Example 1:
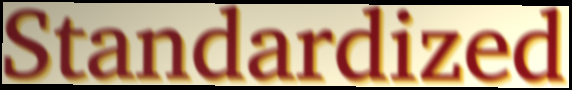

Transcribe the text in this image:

Standardized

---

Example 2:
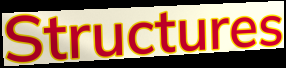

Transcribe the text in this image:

Structures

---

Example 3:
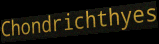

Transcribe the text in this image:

Chondrichthyes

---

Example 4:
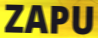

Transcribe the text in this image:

ZAPU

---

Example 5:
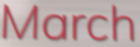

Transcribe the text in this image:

March